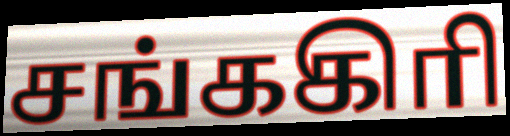
சங்ககிரி